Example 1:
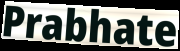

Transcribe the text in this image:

Prabhate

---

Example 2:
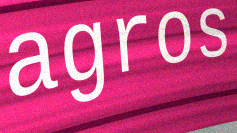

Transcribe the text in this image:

agros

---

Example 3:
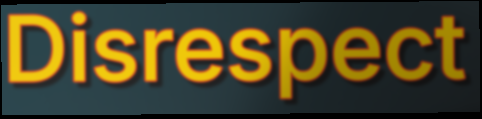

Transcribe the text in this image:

Disrespect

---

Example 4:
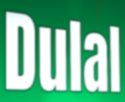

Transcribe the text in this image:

Dulal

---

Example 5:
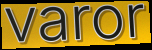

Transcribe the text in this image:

varor